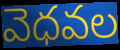
వెధవల